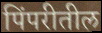
पिंपरीतील